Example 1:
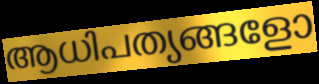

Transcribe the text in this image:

ആധിപത്യങ്ങളോ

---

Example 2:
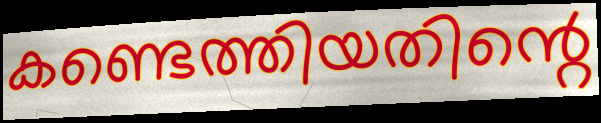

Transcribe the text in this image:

കണ്ടെത്തിയതിന്റെ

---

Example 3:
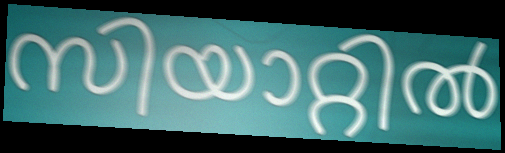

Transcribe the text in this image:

സിയാറ്റിൽ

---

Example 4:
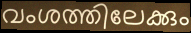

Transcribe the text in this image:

വംശത്തിലേക്കും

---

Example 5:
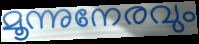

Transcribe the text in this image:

മൂന്നുനേരവും